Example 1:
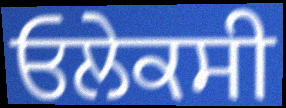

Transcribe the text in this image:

ਓਲੇਕਸੀ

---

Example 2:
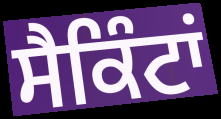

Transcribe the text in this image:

ਸੈਕਿੰਟਾਂ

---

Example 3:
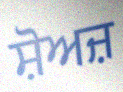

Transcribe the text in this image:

ਸ਼ੋਅਜ਼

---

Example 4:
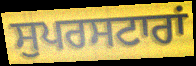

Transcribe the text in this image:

ਸੁਪਰਸਟਾਰਾਂ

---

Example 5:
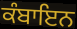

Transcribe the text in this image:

ਕੰਬਾਇਨ